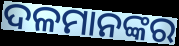
ଦଳମାନଙ୍କର